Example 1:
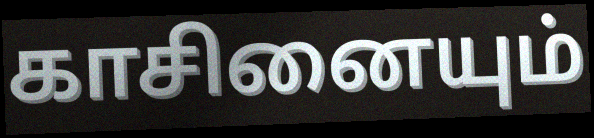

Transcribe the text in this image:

காசினையும்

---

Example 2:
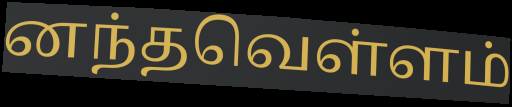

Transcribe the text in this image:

னந்தவெள்ளம்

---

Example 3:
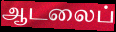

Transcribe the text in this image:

ஆடலைப்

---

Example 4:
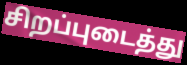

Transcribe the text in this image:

சிறப்புடைத்து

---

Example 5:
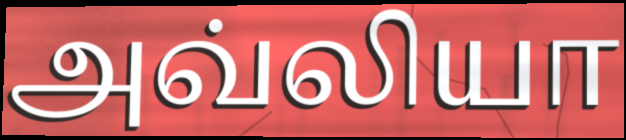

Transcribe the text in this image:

அவ்லியா